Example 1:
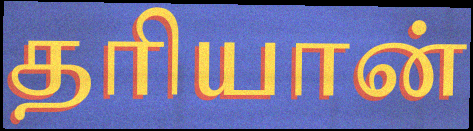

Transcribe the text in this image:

தரியான்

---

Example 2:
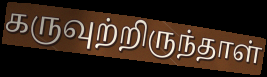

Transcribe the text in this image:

கருவுற்றிருந்தாள்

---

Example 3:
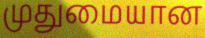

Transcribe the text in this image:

முதுமையான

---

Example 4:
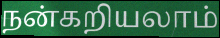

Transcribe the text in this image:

நன்கறியலாம்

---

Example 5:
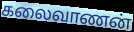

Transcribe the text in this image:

கலைவாணன்